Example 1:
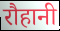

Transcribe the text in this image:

रौहानी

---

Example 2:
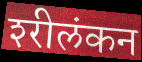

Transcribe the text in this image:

श्रीलंकन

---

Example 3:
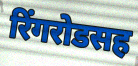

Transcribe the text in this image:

रिंगरोडसह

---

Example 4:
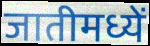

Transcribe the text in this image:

जातीमध्यें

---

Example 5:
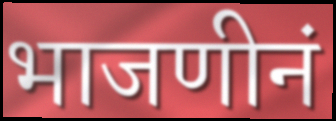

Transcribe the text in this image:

भाजणीनं